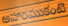
ఆహారముకంటె